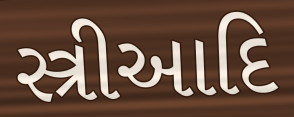
સ્ત્રીઆદિ